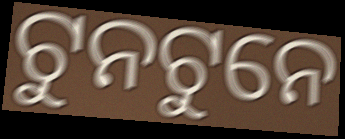
ଟୁନଟୁନେ